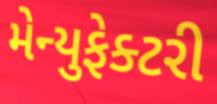
મેન્યુફેક્ટરી